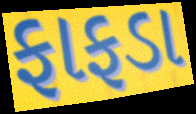
ફાફડા